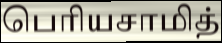
பெரியசாமித்